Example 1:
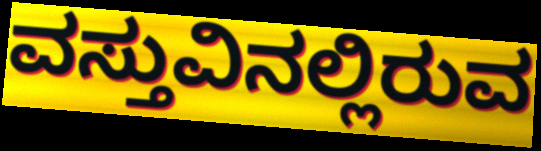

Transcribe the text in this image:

ವಸ್ತುವಿನಲ್ಲಿರುವ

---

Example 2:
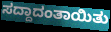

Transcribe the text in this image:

ಸದ್ದಾದಂತಾಯಿತು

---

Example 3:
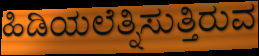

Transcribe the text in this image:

ಹಿಡಿಯಲೆತ್ನಿಸುತ್ತಿರುವ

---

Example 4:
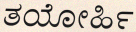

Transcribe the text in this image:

ತಯೋರ್ಹಿ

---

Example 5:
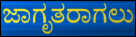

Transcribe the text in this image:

ಜಾಗೃತರಾಗಲು